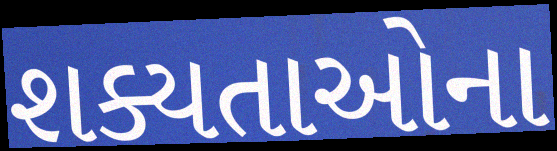
શક્યતાઓના